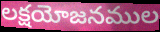
లక్షయోజనముల